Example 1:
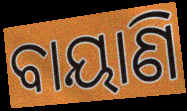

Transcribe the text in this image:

ବାୟାଣି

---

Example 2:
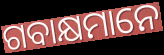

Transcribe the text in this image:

ଗବାକ୍ଷମାନେ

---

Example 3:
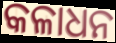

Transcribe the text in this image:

କଳାଧନ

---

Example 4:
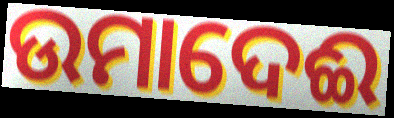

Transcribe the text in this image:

ଉମାଦେଈ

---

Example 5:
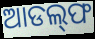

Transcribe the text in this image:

ଆଡଲ୍‌ଫ